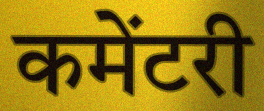
कमेंटरी